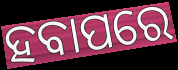
ହବାପରେ